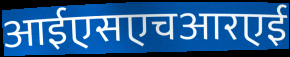
आईएसएचआरएई